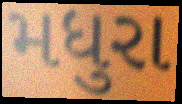
મધુરા